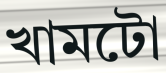
খামটো